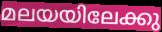
മലയയിലേക്കു